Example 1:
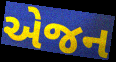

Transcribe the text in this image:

એજન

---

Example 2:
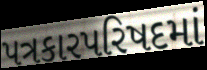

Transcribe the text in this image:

પત્રકારપરિષદમાં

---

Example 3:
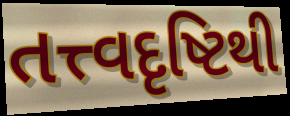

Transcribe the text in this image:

તત્ત્વદૃષ્ટિથી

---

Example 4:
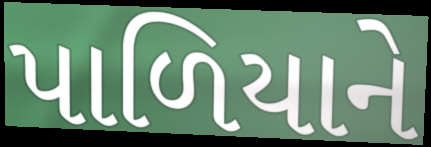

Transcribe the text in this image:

પાળિયાને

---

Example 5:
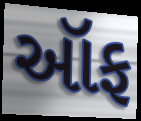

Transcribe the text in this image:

ઑફ